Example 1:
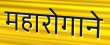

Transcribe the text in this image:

महारोगाने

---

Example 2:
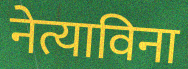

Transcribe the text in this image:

नेत्याविना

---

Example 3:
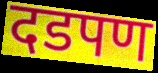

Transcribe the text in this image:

दडपण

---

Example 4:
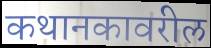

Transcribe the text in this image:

कथानकावरील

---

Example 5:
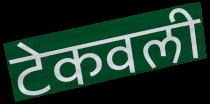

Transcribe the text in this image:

टेकवली